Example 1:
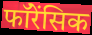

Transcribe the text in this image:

फॉरेंसिक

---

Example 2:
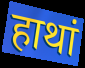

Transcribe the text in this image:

हाथां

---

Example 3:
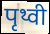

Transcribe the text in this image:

पृथ्‍वी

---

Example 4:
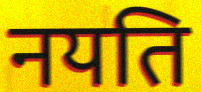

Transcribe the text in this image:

नयति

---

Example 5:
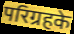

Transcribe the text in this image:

परिग्रहके